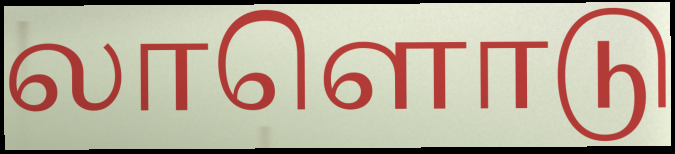
லாளொடு